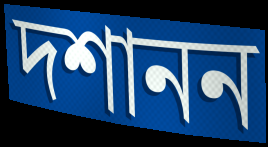
দশানন